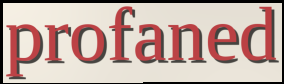
profaned